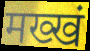
मख्खं